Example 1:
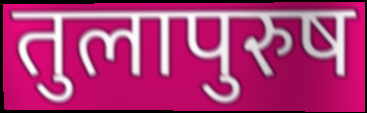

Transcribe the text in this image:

तुलापुरुष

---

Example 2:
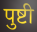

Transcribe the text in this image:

पुष्टी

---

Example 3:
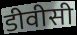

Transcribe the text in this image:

डीवीसी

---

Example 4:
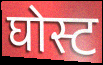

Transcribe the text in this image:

घोस्‍ट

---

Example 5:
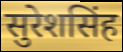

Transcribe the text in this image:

सुरेशसिंह